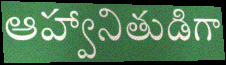
ఆహ్వానితుడిగా